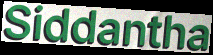
Siddantha